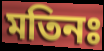
মতিনঃ